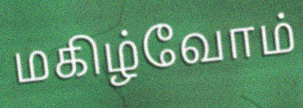
மகிழ்வோம்